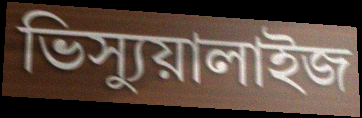
ভিস্যুয়ালাইজ